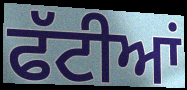
ਫੱਟੀਆਂ